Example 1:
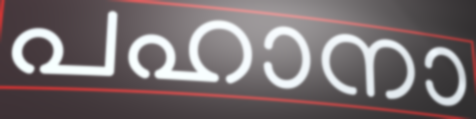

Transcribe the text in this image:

പഹാനാ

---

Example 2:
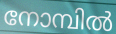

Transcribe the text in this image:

നോമ്പിൽ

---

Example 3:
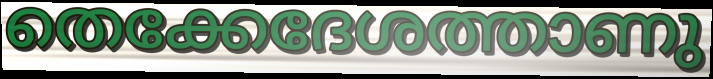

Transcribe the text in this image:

തെക്കേദേശത്താണു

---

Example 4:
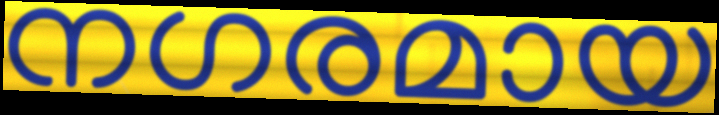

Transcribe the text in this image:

നഗരമായ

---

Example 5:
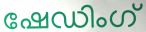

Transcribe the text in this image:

ഷേഡിംഗ്